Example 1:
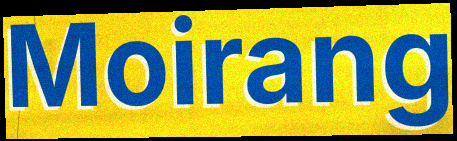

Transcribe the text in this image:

Moirang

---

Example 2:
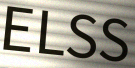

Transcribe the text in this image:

ELSS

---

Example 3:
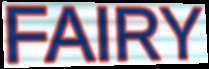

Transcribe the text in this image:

FAIRY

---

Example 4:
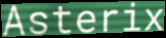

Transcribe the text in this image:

Asterix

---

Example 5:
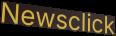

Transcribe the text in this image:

Newsclick